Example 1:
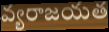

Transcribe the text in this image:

వ్యరాజయత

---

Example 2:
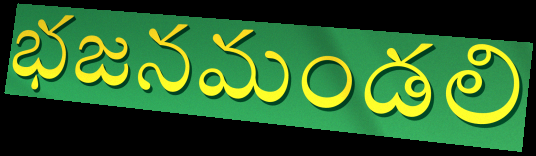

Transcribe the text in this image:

భజనమండలి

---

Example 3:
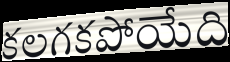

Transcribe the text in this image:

కలగకపోయేది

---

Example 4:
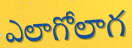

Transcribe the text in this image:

ఎలాగోలాగ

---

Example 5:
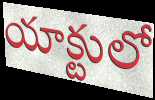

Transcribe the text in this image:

యాక్టులో